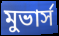
মুভার্স